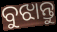
ବୁଝାନ୍ତୁ